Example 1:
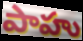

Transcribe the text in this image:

పాహు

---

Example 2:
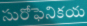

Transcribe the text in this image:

సురోఫెనికయ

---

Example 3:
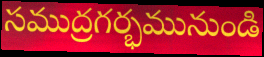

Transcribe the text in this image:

సముద్రగర్భమునుండి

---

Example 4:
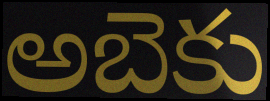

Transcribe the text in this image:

అబెకు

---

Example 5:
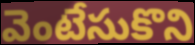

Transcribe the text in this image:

వెంటేసుకొని